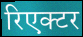
रिएक्टर